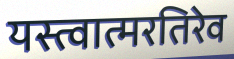
यस्त्वात्मरतिरेव